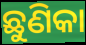
ଛୁଣିକା